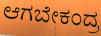
ಆಗಬೇಕಂದ್ರ